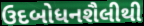
ઉદબોધનશૈલીથી